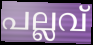
പല്ലവ്